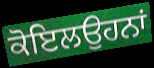
ਕੋਇਲਉਹਨਾਂ